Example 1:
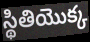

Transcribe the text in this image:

స్థితియొక్క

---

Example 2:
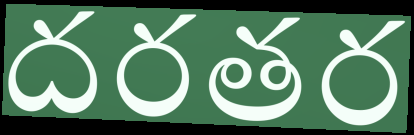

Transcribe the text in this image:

దరతర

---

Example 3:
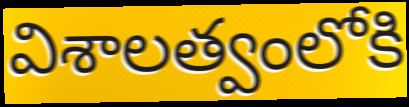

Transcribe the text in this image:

విశాలత్వంలోకి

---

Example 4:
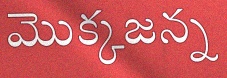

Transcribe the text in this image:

మొక్కజన్న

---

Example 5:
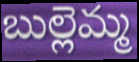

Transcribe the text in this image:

బుల్లెమ్మ